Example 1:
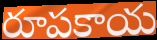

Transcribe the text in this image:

రూపకాయ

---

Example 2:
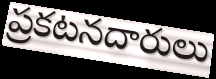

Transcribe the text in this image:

ప్రకటనదారులు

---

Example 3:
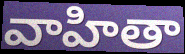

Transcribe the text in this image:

వాహితా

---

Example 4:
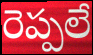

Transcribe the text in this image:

రెప్పలే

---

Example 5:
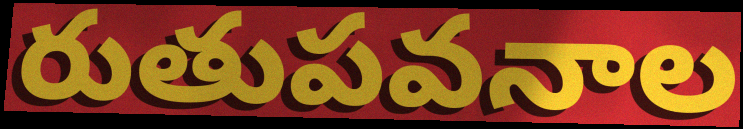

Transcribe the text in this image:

రుతుపవనాల